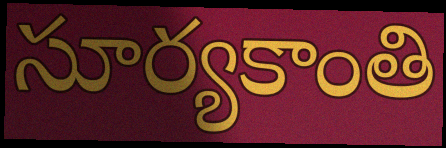
సూర్యకాంతి